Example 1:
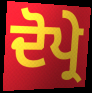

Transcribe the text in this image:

ਦੋਪ੍ਰੇ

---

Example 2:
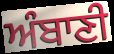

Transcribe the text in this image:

ਅੰਬਾਣੀ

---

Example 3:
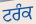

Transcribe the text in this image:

ਟਰੰਕ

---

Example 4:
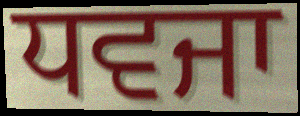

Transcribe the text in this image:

ਧਵਜਾ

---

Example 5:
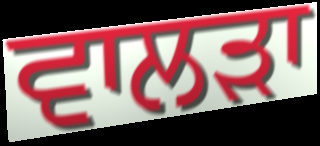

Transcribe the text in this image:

ਵਾਲੜਾ